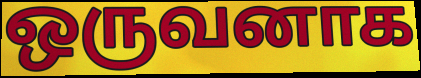
ஒருவனாக